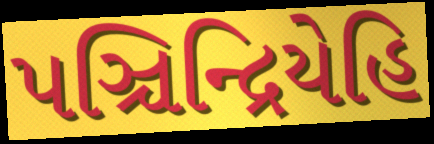
પઞ્ચિન્દ્રિયેહિ